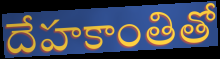
దేహకాంతితో